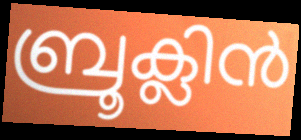
ബ്രൂക്ലിൻ